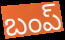
బంప్